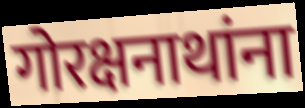
गोरक्षनाथांना